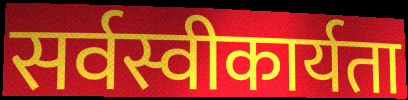
सर्वस्वीकार्यता